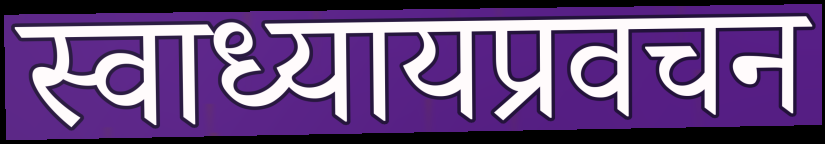
स्वाध्यायप्रवचन